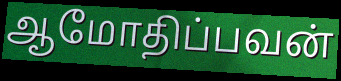
ஆமோதிப்பவன்